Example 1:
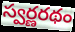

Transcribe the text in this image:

స్వర్ణరథం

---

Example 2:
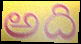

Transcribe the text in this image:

అది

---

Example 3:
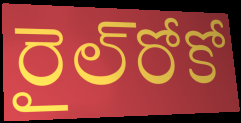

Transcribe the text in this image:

రైల్‌రోకో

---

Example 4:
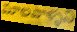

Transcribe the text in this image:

మాలవాళ్ళని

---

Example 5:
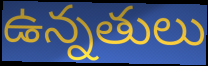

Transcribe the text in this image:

ఉన్నతులు